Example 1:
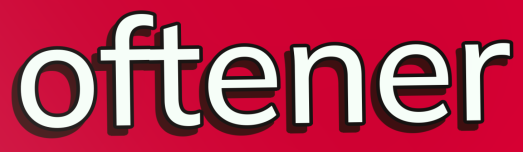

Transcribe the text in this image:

oftener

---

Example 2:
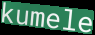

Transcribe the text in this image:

kumele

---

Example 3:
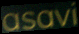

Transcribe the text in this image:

asavi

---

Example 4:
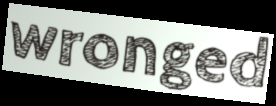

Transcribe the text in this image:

wronged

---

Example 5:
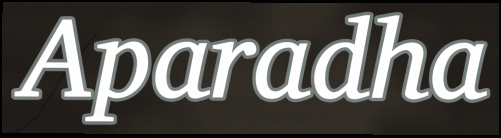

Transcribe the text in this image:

Aparadha